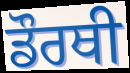
ਡੌਰਥੀ